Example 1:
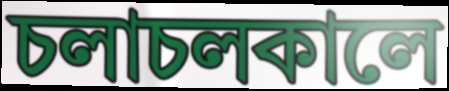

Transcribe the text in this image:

চলাচলকালে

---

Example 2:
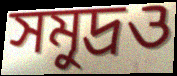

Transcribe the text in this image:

সমুদ্রও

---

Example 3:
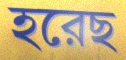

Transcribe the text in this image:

হরেছ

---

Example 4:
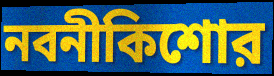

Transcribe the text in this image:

নবনীকিশোর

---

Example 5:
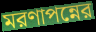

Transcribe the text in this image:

মরণাপন্নের